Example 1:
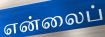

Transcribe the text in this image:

என்லைப்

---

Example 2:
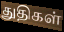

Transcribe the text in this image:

துதிகள்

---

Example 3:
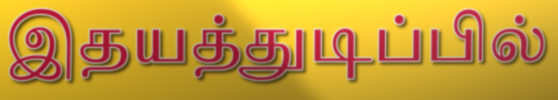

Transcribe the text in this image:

இதயத்துடிப்பில்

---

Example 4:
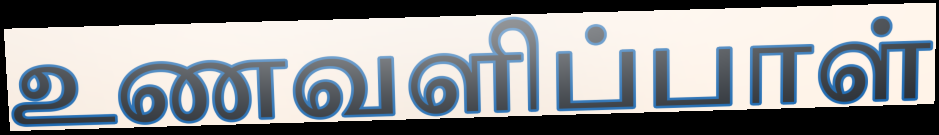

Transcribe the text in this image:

உணவளிப்பாள்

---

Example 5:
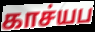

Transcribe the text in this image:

காச்யப